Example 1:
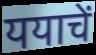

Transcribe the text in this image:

ययाचें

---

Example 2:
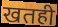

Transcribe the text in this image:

खतही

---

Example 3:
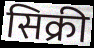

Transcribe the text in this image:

सिक्री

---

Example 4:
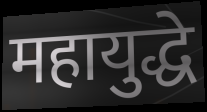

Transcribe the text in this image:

महायुद्धे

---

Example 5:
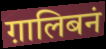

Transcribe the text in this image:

ग़ालिबनं